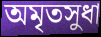
অমৃতসুধা